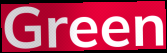
Green